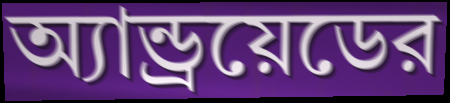
অ্যান্ড্রয়েডের